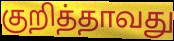
குறித்தாவது